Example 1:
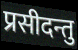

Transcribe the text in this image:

प्रसीदन्तु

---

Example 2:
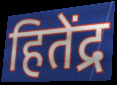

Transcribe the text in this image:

हितेंद्र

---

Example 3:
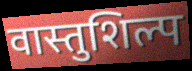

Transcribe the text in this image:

वास्तुशिल्प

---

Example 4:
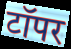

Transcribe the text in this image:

टॉपर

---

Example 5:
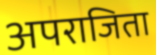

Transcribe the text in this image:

अपराजिता